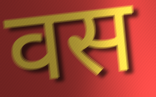
वस